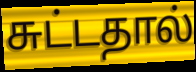
சுட்டதால்